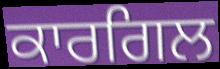
ਕਾਰਗਿਲ